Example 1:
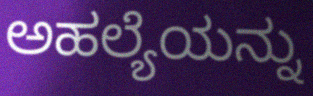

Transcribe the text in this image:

ಅಹಲ್ಯೆಯನ್ನು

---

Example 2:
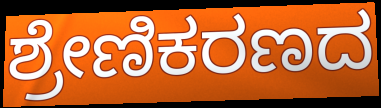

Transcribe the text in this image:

ಶ್ರೇಣಿಕರಣದ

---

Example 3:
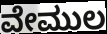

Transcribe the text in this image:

ವೇಮುಲ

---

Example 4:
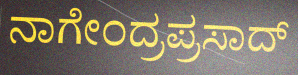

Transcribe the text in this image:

ನಾಗೇಂದ್ರಪ್ರಸಾದ್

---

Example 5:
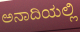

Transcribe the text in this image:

ಅನಾದಿಯಲ್ಲಿ